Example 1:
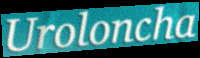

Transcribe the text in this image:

Uroloncha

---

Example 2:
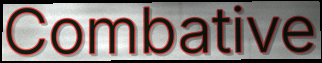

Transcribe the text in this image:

Combative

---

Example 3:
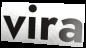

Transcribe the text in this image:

vira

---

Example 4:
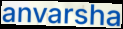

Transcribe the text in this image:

anvarsha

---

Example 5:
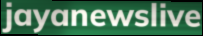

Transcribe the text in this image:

jayanewslive